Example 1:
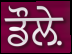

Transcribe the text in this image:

ਡੌਲ਼ੇ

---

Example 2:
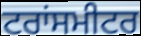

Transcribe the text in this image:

ਟਰਾਂਸਮੀਟਰ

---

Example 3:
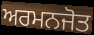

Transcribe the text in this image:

ਅਰਮਨਜੋਤ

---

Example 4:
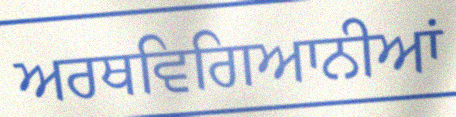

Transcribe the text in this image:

ਅਰਥਵਿਗਿਆਨੀਆਂ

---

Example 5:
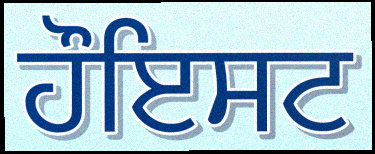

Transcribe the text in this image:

ਹੌਇਸਟ